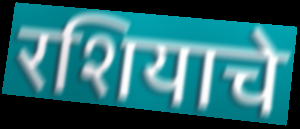
रशियाचे